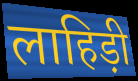
लाहिड़ी